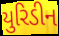
યુરિડીન